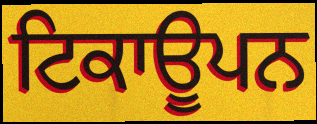
ਟਿਕਾਊਪਨ